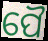
ପୈ